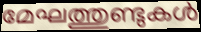
മേഘത്തുണ്ടുകൾ